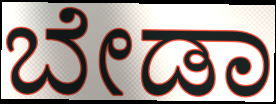
ಬೇಡಾ